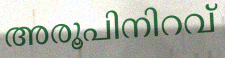
അരൂപിനിറവ്